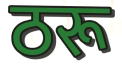
ठरू